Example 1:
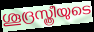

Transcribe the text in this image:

ശൂദ്രസ്ത്രീയുടെ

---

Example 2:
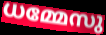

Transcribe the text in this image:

ധമ്മേസു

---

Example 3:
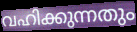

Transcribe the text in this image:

വഹിക്കുന്നതും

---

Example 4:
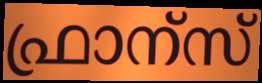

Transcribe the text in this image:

ഫ്രാന്സ്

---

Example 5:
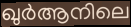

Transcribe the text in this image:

ഖുർആനിലെ